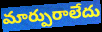
మార్పురాలేదు